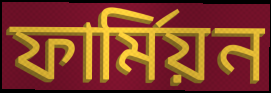
ফাৰ্মিয়ন